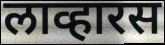
लाव्हारस